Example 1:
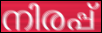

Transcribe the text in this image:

നിരപ്പ്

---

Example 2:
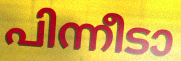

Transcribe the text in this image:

പിന്നീടാ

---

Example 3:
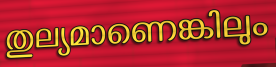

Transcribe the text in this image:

തുല്യമാണെങ്കിലും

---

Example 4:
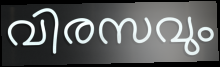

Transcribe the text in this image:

വിരസവും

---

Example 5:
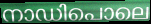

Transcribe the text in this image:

നാഡിപൊലെ